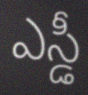
ఎస్డీ